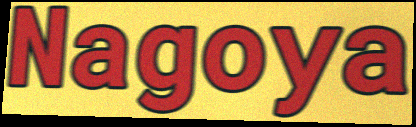
Nagoya